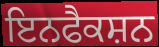
ਇਨਫੈਕਸ਼ਨ